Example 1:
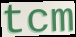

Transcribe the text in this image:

tcm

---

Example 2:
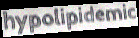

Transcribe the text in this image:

hypolipidemic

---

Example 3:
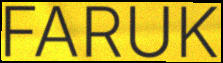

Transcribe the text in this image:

FARUK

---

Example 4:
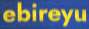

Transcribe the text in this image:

ebireyu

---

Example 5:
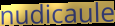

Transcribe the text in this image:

nudicaule